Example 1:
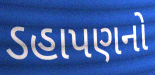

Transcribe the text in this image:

ડહાપણનો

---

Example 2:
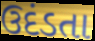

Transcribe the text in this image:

ઉદંડતા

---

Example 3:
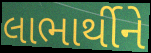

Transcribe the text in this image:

લાભાર્થીને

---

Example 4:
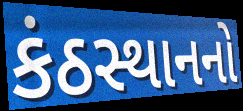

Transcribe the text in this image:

કંઠસ્થાનનો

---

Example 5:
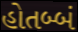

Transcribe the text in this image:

હોતબ્બં